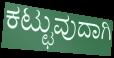
ಕಟ್ಟುವುದಾಗಿ